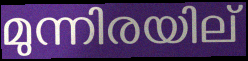
മുന്നിരയില്